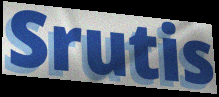
Srutis